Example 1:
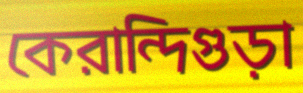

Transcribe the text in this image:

কেরান্দিগুড়া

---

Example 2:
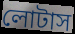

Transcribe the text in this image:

লোটাস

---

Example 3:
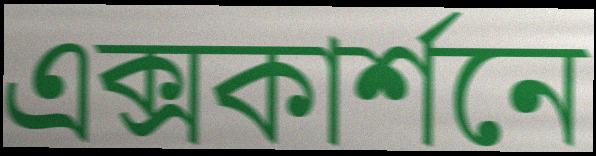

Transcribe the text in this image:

এক্সকার্শনে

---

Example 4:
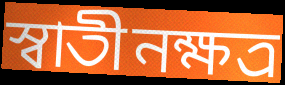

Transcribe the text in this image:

স্বাতীনক্ষত্র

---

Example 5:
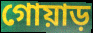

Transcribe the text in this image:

গোয়াড়